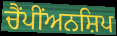
ਚੈਂਪੀਂਅਨਸ਼ਿਪ